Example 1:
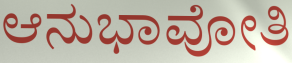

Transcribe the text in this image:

ಆನುಭಾವೋತಿ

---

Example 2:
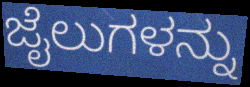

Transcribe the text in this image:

ಜೈಲುಗಳನ್ನು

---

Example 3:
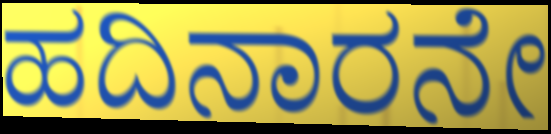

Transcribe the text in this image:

ಹದಿನಾರನೇ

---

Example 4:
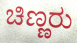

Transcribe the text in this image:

ಚಿಣ್ಣರು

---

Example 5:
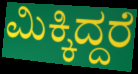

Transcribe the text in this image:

ಮಿಕ್ಕಿದ್ದರೆ